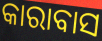
କାରାବାସ